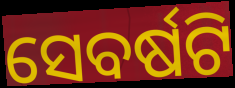
ସେବର୍ଷଟି